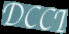
DCCI